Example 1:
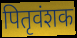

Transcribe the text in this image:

पितृवंशक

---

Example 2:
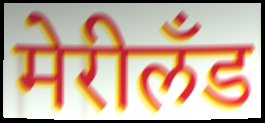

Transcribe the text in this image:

मेरीलँड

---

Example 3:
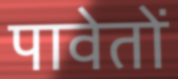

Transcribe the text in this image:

पावेतों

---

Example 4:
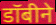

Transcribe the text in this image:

डॉबीने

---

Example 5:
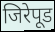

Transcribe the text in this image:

जिरेपूड